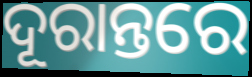
ଦୂରାନ୍ତରେ